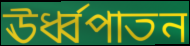
ঊর্ধ্বপাতন